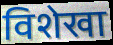
विशेखा